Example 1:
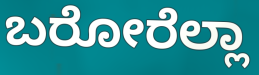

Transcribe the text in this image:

ಬರೋರೆಲ್ಲಾ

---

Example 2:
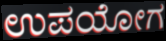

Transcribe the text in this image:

ಉಪಯೋಗ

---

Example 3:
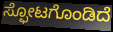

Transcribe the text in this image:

ಸ್ಫೋಟಗೊಂಡಿದೆ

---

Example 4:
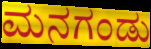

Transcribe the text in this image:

ಮನಗಂಡು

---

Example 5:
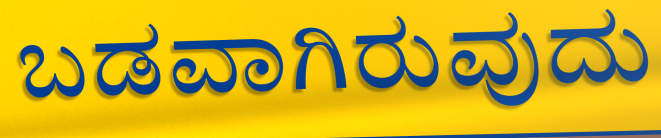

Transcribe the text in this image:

ಬಡವಾಗಿರುವುದು